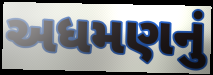
અધમણનું